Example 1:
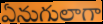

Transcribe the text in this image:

ఏనుగులాగా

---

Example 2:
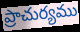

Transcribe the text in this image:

ప్రాచుర్యము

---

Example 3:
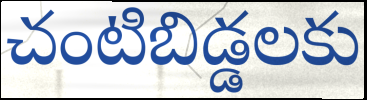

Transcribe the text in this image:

చంటిబిడ్డలకు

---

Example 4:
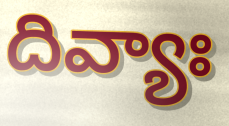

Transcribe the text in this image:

దివ్యాః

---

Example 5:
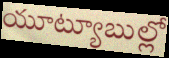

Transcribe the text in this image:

యూట్యూబుల్లో